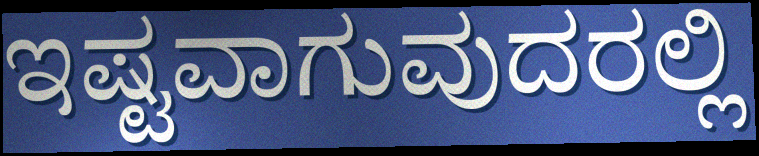
ಇಷ್ಟವಾಗುವುದರಲ್ಲಿ